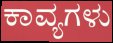
ಕಾವ್ಯಗಳು